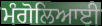
ਮੰਗੋਲਿਆਈ